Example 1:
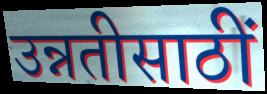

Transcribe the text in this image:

उन्नतीसाठीं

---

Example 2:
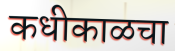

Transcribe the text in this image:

कधीकाळचा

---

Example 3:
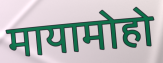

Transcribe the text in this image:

मायामोहो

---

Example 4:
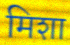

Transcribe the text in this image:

मिशा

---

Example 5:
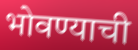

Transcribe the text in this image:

भोवण्याची